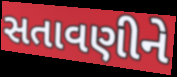
સતાવણીને